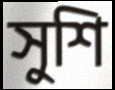
সুশি